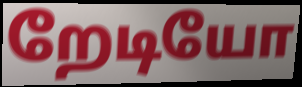
றேடியோ